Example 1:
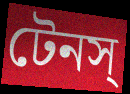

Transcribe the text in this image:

টেনস্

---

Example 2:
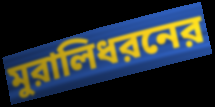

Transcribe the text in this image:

মুরালিধরনের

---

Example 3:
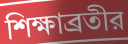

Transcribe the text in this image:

শিক্ষাব্রতীর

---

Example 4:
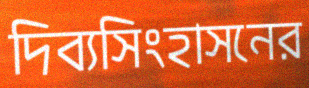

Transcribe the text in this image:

দিব্যসিংহাসনের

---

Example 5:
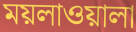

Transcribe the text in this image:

ময়লাওয়ালা